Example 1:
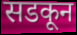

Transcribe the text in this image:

सडकून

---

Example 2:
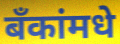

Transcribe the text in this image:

बँकांमधे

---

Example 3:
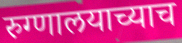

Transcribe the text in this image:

रुग्णालयाच्याच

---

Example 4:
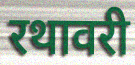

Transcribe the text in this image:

रथावरी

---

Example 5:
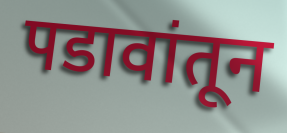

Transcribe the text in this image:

पडावांतून